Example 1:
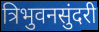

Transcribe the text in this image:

त्रिभुवनसुंदरी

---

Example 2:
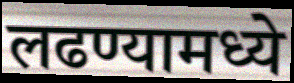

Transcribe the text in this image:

लढण्यामध्ये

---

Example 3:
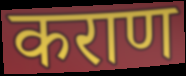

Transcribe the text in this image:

कराण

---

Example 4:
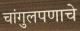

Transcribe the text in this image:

चांगुलपणाचे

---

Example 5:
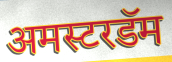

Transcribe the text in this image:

अमस्टरडॅम